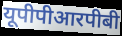
यूपीपीआरपीबी